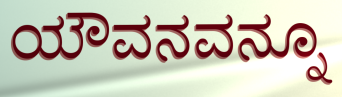
ಯೌವನವನ್ನೂ